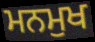
ਮਨਮੁਖ